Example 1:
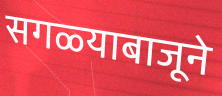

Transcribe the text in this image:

सगळ्याबाजूने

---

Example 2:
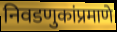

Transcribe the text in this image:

निवडणुकांप्रमाणे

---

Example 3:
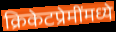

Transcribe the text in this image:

क्रिकेटप्रेमींमध्ये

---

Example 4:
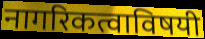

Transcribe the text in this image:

नागरिकत्वाविषयी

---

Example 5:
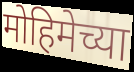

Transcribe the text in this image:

मोहिमेच्या